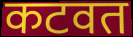
कटवत